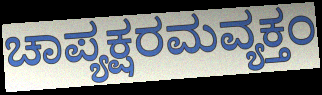
ಚಾಪ್ಯಕ್ಷರಮವ್ಯಕ್ತಂ